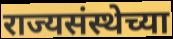
राज्यसंस्थेच्या